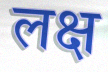
लक्ष